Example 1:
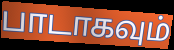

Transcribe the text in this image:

பாடாகவும்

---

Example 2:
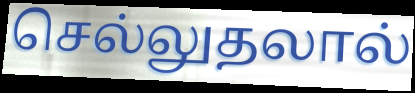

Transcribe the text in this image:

செல்லுதலால்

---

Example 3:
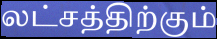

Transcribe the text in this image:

லட்சத்திற்கும்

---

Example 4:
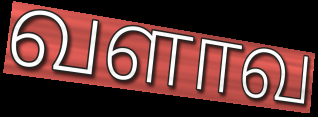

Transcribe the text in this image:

வளாவ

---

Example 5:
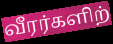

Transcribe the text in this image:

வீரர்களிற்